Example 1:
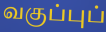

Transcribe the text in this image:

வகுப்புப்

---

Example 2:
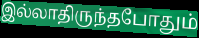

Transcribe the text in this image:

இல்லாதிருந்தபோதும்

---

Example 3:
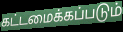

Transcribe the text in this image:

கட்டமைக்கப்படும்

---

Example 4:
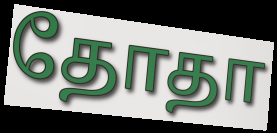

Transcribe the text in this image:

தோதா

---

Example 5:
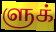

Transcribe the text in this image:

ளுக்